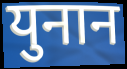
युनान